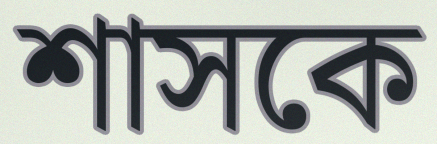
শাসকে